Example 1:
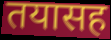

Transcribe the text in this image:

तयासह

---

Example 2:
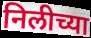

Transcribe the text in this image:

निलीच्या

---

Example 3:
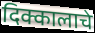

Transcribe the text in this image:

दिक्कालाचे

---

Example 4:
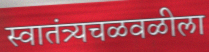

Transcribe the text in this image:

स्वातंत्र्यचळवळीला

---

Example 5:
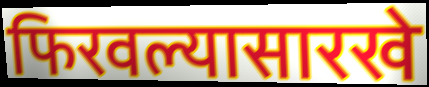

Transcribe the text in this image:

फिरवल्यासारखे